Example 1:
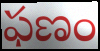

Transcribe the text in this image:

ఫణం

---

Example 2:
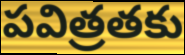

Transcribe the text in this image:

పవిత్రతకు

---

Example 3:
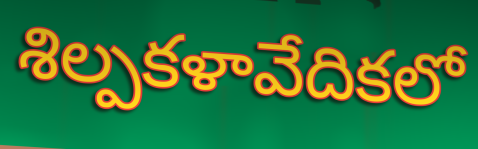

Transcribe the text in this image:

శిల్పకళావేదికలో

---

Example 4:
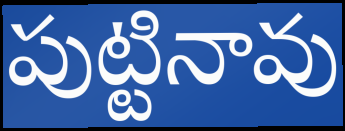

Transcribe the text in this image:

పుట్టినావు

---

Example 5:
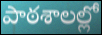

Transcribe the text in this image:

పాఠశాలల్లో